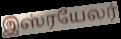
இஸ்ரயேலர்